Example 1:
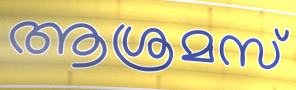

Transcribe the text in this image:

ആശ്രമസ്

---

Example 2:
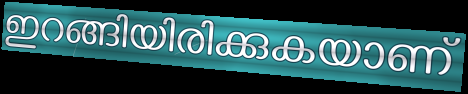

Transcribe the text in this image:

ഇറങ്ങിയിരിക്കുകയാണ്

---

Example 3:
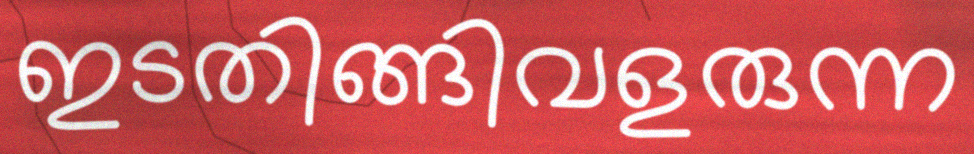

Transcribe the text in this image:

ഇടതിങ്ങിവളരുന്ന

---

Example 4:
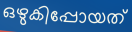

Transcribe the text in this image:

ഒഴുകിപ്പോയത്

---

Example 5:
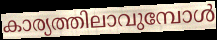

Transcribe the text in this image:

കാര്യത്തിലാവുമ്പോൾ